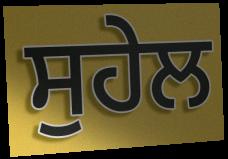
ਸੁਹੇਲ